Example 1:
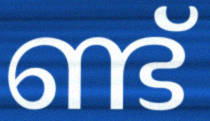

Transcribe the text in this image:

ണ്ട്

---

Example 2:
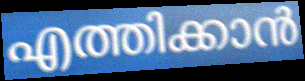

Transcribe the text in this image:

എത്തിക്കാൻ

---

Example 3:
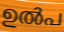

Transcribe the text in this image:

ഉൽപ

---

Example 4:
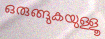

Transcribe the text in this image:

ഒരുങ്ങുകയുള്ളൂ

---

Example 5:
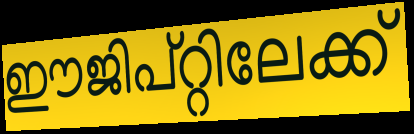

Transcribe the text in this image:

ഈജിപ്റ്റിലേക്ക്